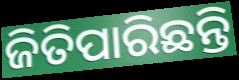
ଜିତିପାରିଛନ୍ତି